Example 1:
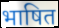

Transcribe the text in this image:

भाषित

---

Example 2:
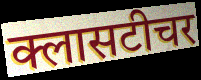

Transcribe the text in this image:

क्लासटीचर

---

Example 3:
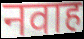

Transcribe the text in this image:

नवाह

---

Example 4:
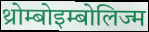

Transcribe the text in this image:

थ्रोम्बोइम्बोलिज्म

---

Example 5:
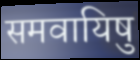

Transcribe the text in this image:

समवायिषु